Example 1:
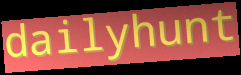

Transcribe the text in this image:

dailyhunt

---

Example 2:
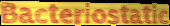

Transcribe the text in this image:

Bacteriostatic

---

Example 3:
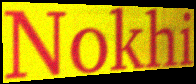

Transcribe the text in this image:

Nokhi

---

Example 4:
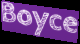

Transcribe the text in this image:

Boyce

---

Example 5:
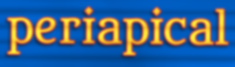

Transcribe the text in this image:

periapical